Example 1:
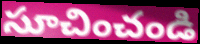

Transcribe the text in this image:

సూచించండి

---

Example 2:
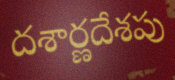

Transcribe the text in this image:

దశార్ణదేశపు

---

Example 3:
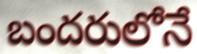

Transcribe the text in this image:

బందరులోనే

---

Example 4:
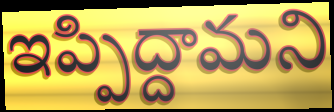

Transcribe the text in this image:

ఇప్పిద్దామని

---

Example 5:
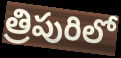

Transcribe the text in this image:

త్రిపురిలో